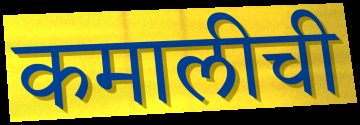
कमालीची